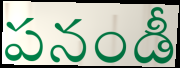
పనండీ